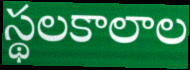
స్థలకాలాల